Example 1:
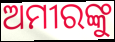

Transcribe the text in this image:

ଅମୀରଙ୍କୁ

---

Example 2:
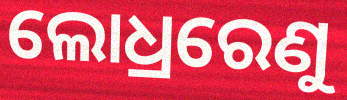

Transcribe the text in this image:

ଲୋଧ୍ରରେଣୁ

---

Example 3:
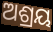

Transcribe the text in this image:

ଅଶ୍ରୟ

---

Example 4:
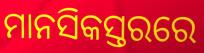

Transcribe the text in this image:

ମାନସିକସ୍ତରରେ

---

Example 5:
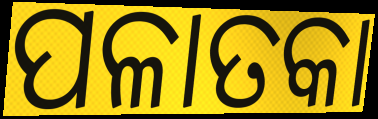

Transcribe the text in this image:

ପଳାତକା